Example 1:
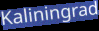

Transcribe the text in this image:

Kaliningrad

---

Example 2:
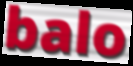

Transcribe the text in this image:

balo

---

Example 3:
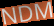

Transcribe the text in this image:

NDM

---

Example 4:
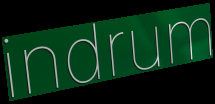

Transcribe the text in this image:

indrum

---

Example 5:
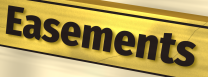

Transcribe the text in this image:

Easements